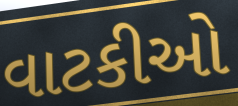
વાટકીઓ